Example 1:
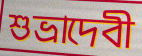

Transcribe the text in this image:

শুভ্রাদেবী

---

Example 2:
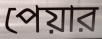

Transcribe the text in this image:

পেয়ার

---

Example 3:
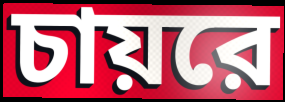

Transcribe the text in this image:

চায়রে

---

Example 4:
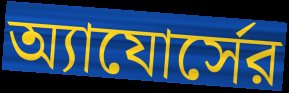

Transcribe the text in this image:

অ্যাযোর্সের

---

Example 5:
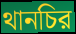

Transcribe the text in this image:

থানচির